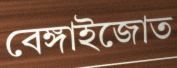
বেঙ্গাইজোত